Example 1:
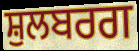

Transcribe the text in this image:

ਸ਼ੁਲਬਰਗ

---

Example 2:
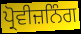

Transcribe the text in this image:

ਪ੍ਰੋਵੀਜ਼ਨਿੰਗ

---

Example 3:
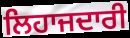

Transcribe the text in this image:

ਲਿਹਾਜਦਾਰੀ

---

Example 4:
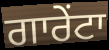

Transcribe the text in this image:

ਗਾਰੇਂਟਾ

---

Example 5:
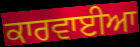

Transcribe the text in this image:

ਕਾਰਵਾਈਆ